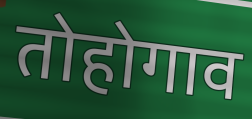
तोहोगाव